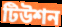
টিউশন